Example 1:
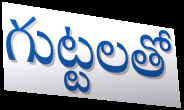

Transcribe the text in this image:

గుట్టలతో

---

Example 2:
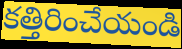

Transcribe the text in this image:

కత్తిరించేయండి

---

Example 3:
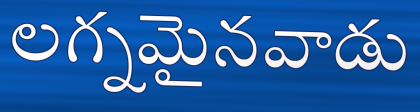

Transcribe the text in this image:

లగ్నమైనవాడు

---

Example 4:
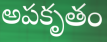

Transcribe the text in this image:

అపకృతం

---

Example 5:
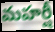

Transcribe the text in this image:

మహర్షీ